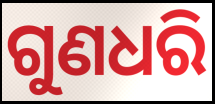
ଗୁଣଧରି